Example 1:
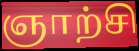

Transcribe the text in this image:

ஞாற்சி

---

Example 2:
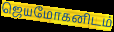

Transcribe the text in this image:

ஜெயமோகனிடம்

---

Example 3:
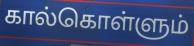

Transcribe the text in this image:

கால்கொள்ளும்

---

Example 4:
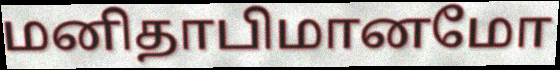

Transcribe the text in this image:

மனிதாபிமானமோ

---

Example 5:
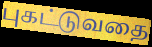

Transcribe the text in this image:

புகட்டுவதை